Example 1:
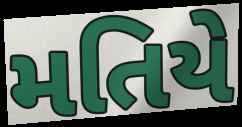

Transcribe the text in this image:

મતિયે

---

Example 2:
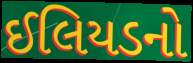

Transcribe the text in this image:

ઈલિયડનો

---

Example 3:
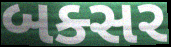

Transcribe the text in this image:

બક્સર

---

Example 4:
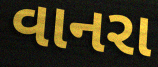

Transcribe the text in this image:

વાનરા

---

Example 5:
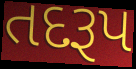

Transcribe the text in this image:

તદરૂપ